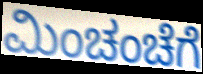
ಮಿಂಚಂಚೆಗೆ